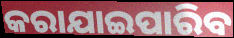
କରାଯାଇପାରିବ